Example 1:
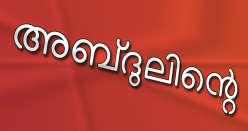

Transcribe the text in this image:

അബ്ദുലിന്റെ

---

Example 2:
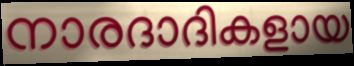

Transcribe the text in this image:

നാരദാദികളായ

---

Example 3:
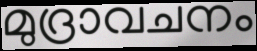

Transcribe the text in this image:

മുദ്രാവചനം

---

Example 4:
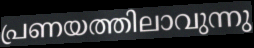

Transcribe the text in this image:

പ്രണയത്തിലാവുന്നു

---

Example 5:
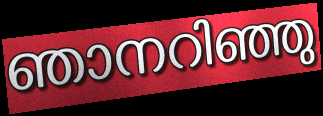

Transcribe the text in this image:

ഞാനറിഞ്ഞു